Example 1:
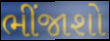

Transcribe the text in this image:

ભીંજાશો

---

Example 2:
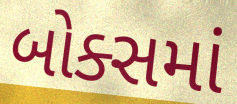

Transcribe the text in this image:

બોક્સમાં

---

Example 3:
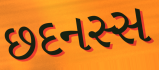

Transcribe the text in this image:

છદનસ્સ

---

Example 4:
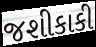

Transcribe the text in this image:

જશીકાકી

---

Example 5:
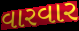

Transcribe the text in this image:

વારવાર